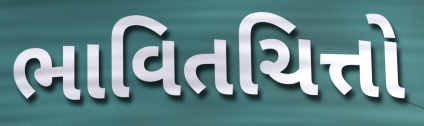
ભાવિતચિત્તો